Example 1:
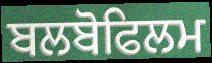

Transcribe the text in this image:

ਬਲਬੋਫਿਲਮ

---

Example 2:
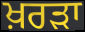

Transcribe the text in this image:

ਖ਼ਰੜਾ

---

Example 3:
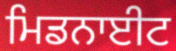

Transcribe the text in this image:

ਮਿਡਨਾਈਟ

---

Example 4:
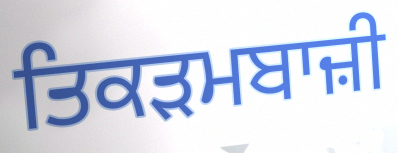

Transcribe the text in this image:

ਤਿਕੜਮਬਾਜ਼ੀ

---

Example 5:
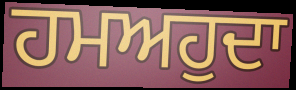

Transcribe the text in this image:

ਹਮਅਹੁਦਾ